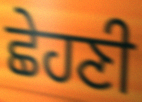
ਛੇਹਣੀ